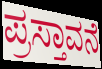
ಪ್ರಸ್ತಾವನೆ